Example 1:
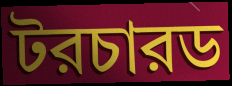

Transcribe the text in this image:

টরচারড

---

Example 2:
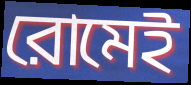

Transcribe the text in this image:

রোমেই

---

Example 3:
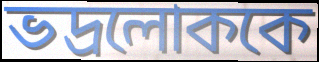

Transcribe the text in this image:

ভদ্রলোককে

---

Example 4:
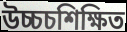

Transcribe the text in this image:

উচ্চচশিক্ষিত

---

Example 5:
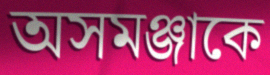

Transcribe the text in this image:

অসমঞ্জাকে